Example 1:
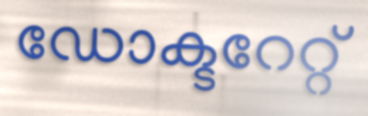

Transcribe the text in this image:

ഡോക്ടറേറ്റ്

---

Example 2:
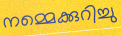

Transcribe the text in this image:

നമ്മെക്കുറിച്ചു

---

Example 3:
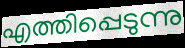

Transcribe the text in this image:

എത്തിപ്പെടുന്നു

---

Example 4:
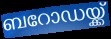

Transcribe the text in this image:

ബറോഡയ്ക്ക്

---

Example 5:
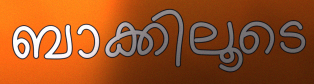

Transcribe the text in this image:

ബാക്കിലൂടെ